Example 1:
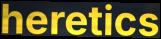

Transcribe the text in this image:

heretics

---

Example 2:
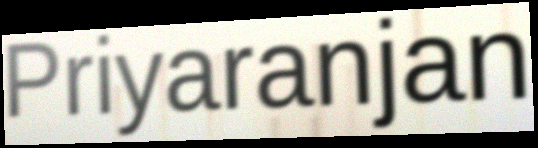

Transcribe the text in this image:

Priyaranjan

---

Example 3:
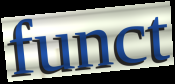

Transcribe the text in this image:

funct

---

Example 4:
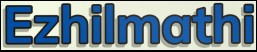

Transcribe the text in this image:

Ezhilmathi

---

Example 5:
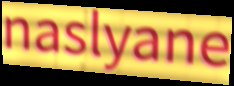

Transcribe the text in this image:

naslyane